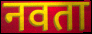
नवता